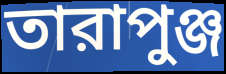
তারাপুঞ্জ